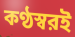
কণ্ঠস্বরই